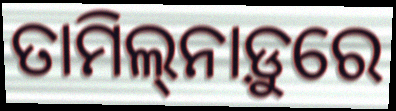
ତାମିଲ୍‌ନାଡ଼ୁରେ